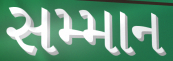
સમ્માન